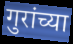
गुरांच्या